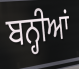
ਬਨ੍ਹੀਆਂ